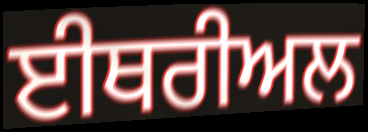
ਈਥਰੀਅਲ